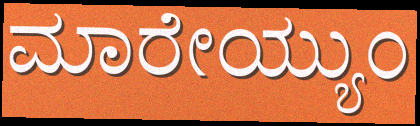
ಮಾರೇಯ್ಯುಂ